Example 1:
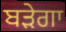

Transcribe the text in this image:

ਬੜੇਗਾ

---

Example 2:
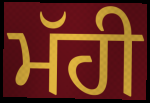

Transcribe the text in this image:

ਮੱਹੀ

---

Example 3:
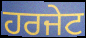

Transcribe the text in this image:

ਹਰਜੇਟ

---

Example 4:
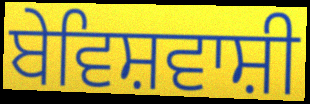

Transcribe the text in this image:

ਬੇਵਿਸ਼ਵਾਸ਼ੀ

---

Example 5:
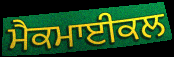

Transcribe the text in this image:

ਮੈਕਮਾਈਕਲ